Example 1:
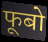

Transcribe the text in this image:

फूबो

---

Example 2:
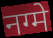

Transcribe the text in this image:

नग्मे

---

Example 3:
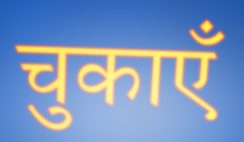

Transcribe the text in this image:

चुकाएँ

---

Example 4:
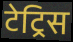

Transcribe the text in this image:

टेट्रिस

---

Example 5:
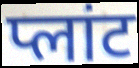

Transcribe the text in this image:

प्लांट